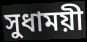
সুধাময়ী